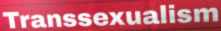
Transsexualism